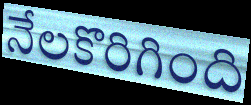
నేలకొరిగింది